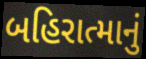
બહિરાત્માનું